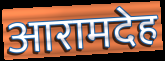
आरामदेह